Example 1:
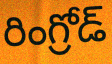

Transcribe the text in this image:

రింగ్రోడ్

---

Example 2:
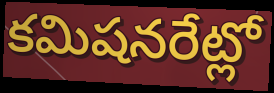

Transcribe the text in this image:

కమిషనరేట్లో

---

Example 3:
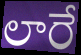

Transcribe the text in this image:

లారే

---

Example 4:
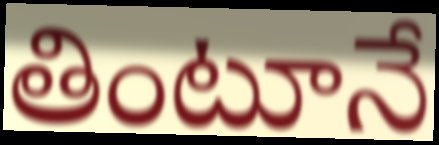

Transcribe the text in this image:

తింటూనే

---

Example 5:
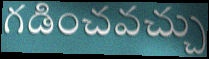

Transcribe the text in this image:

గడించవచ్చు